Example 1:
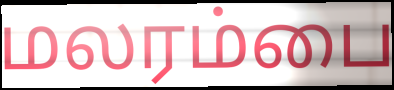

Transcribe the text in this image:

மலரம்பை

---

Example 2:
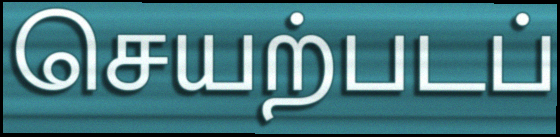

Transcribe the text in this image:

செயற்படப்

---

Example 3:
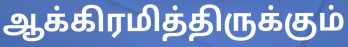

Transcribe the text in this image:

ஆக்கிரமித்திருக்கும்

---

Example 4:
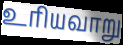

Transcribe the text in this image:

உரியவாறு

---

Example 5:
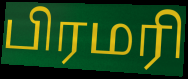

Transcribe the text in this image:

பிரமரி